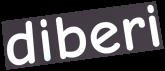
diberi